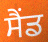
ਸੈਂਡ